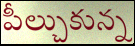
పీల్చుకున్న